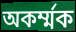
অকৰ্ম্মক